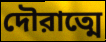
দৌরাত্মে